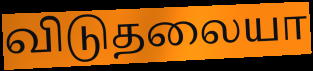
விடுதலையா